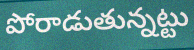
పోరాడుతున్నట్టు